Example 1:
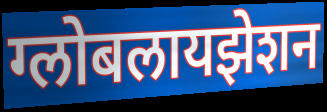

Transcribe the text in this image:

ग्लोबलायझेशन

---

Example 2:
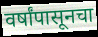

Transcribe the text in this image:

वर्षांपासूनचा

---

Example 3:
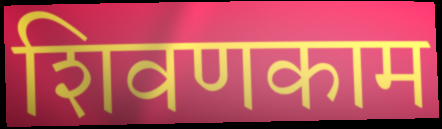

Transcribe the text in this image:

शिवणकाम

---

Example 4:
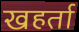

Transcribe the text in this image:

खहर्ता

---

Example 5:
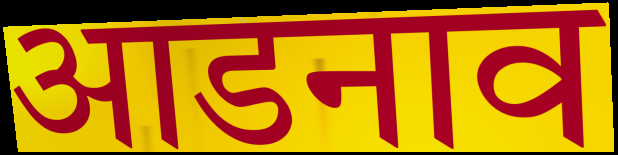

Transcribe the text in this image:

आडनाव